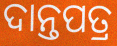
ଦାନ୍ତପତ୍ର